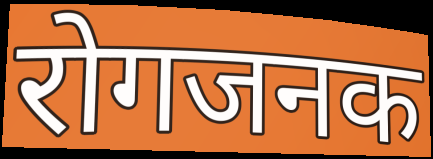
रोगजनक